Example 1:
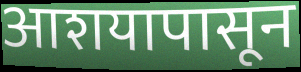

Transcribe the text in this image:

आशयापासून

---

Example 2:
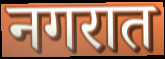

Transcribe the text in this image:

नगरात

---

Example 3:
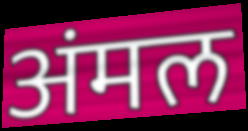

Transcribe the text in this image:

अंमल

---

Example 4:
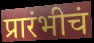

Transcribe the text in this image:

प्रारंभीचं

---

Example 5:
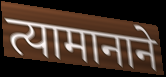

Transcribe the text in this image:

त्यामानाने